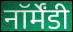
नॉर्मेंडी